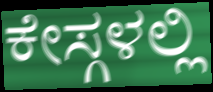
ಕೇಸ್ಗಳಲ್ಲಿ